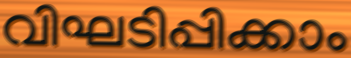
വിഘടിപ്പിക്കാം